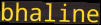
bhaline